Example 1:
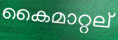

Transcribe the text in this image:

കൈമാറ്റല്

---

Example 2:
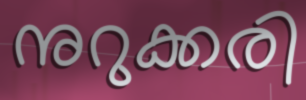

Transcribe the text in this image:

നുറുക്കരി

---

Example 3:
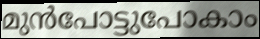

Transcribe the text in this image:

മുൻപോട്ടുപോകാം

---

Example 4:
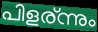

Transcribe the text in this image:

പിളര്ന്നും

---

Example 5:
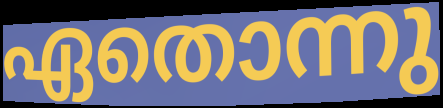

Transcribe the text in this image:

ഏതൊന്നു